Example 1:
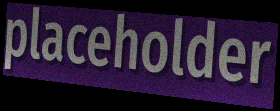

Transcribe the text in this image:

placeholder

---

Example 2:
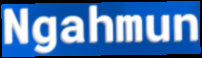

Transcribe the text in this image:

Ngahmun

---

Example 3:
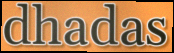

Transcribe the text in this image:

dhadas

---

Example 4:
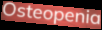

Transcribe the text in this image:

Osteopenia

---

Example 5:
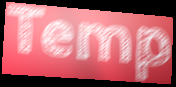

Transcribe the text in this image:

Temp